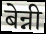
बेन्नी